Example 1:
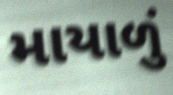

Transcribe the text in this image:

માયાળું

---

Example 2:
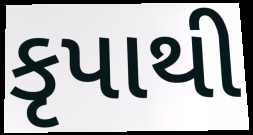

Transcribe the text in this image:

કૃપાથી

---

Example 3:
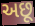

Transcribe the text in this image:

અછૂ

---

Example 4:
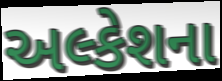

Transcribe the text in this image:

અલ્કેશના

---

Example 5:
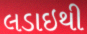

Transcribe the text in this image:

લડાઇથી